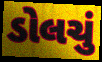
ડોલચું